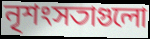
নৃশংসতাগুলো